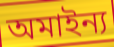
অমাইন্য